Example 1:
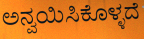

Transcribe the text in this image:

ಅನ್ವಯಿಸಿಕೊಳ್ಳದೆ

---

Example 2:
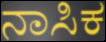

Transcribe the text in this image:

ನಾಸಿಕ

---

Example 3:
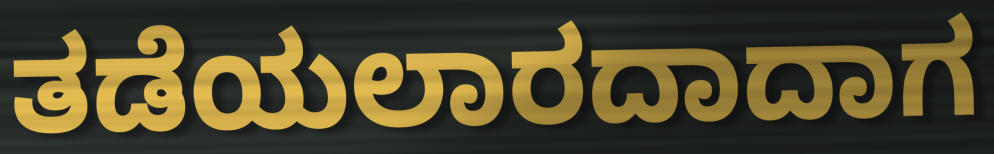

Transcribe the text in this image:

ತಡೆಯಲಾರದಾದಾಗ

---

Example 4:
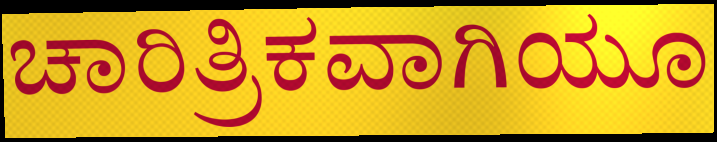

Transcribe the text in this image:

ಚಾರಿತ್ರಿಕವಾಗಿಯೂ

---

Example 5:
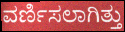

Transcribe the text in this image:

ವರ್ಣಿಸಲಾಗಿತ್ತು